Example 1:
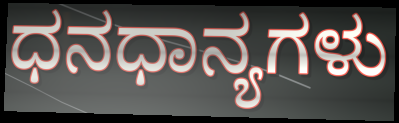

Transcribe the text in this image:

ಧನಧಾನ್ಯಗಳು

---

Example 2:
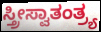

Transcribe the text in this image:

ಸ್ತ್ರೀಸ್ವಾತಂತ್ರ್ಯ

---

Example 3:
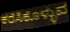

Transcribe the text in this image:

ಕರೆಸಿಕೊಳ್ಳುವ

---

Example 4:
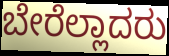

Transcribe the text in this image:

ಬೇರೆಲ್ಲಾದರು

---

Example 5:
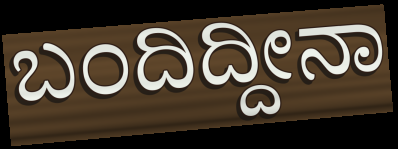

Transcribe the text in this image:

ಬಂದಿದ್ದೀನಾ